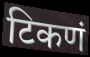
टिकणं